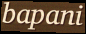
bapani